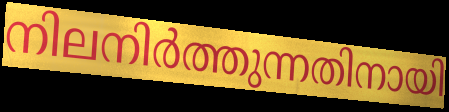
നിലനിർത്തുന്നതിനായി